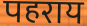
पहराय